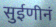
सुईणीनं